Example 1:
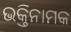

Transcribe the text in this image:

ଭକ୍ତିନାମକ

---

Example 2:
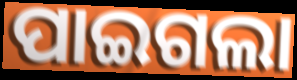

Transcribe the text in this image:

ପାଇଗଲା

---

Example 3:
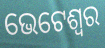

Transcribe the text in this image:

ଭେଟେଶ୍ୱର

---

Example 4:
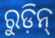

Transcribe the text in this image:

ରୁଡ଼ିନ୍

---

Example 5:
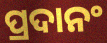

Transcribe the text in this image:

ପ୍ରଦାନଂ